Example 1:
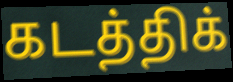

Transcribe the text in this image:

கடத்திக்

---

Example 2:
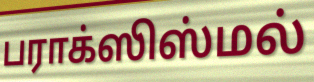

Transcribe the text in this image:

பராக்ஸிஸ்மல்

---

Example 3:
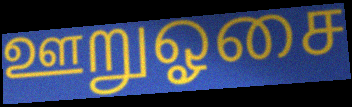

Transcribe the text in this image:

ஊறுஓசை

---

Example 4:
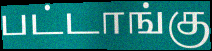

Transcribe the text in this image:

பட்டாங்கு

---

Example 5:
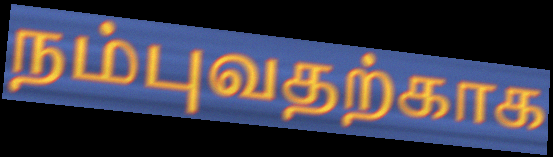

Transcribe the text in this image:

நம்புவதற்காக